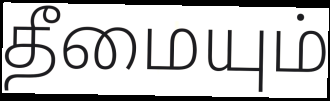
தீமையும்